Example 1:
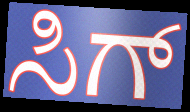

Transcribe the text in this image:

ಸಿಗ್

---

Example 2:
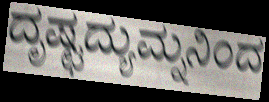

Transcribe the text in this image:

ದೃಷ್ಟದ್ಯುಮ್ನನಿಂದ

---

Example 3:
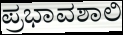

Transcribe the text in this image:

ಪ್ರಭಾವಶಾಲಿ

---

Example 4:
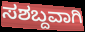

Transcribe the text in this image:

ಸಶಬ್ದವಾಗಿ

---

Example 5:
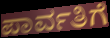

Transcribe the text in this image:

ಪಾರ್ವತಿಗೆ